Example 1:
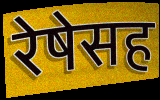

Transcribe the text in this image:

रेषेसह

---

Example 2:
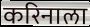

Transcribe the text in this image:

करिनाला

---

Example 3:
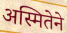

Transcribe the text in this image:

अस्मितेने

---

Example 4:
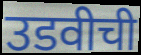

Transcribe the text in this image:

उडवीची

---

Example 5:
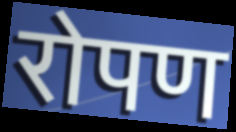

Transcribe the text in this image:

रोपण